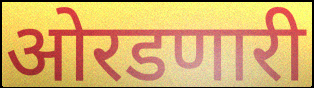
ओरडणारी